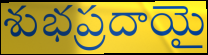
శుభప్రదాయై